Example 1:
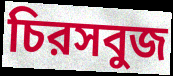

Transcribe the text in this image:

চিরসবুজ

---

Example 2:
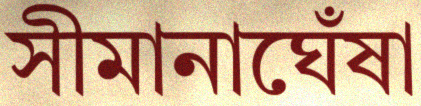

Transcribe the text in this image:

সীমানাঘেঁষা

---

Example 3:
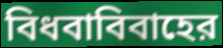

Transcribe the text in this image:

বিধবাবিবাহের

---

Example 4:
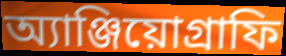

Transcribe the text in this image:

অ্যাঞ্জিয়োগ্রাফি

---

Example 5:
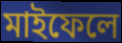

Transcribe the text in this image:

মাইফেলে